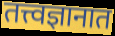
तत्त्वज्ञानात